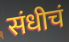
संधीचं